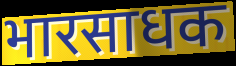
भारसाधक